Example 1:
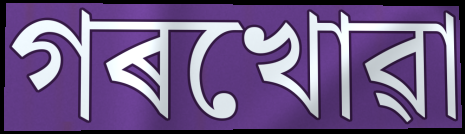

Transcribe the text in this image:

গৰখোৱা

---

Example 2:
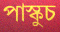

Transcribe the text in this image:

পাস্কুচ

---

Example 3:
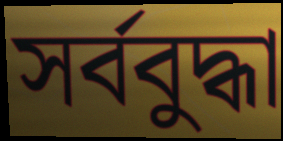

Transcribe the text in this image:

সৰ্ববুদ্ধা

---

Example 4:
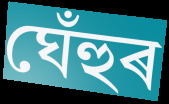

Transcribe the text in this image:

ঘেঁহুৰ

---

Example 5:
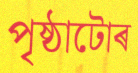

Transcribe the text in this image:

পৃষ্ঠাটোৰ